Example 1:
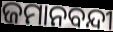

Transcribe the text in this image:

ଜମାନବନ୍ଦୀ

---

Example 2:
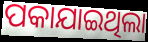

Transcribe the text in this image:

ପକାଯାଇଥିଲା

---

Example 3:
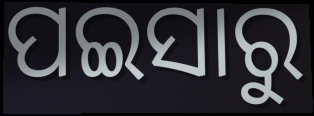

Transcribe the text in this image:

ପଇସାରୁ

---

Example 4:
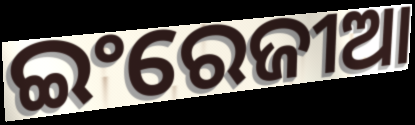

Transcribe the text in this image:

ଇଂରେଜୀଆ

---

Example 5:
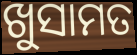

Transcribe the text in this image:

ଖୁସାମତ